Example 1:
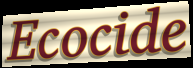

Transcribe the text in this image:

Ecocide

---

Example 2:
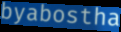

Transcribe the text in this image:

byabostha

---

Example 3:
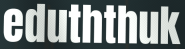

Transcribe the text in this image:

eduththuk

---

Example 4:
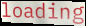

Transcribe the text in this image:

loading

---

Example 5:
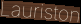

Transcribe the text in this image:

Lauriston